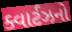
ક્વાર્ટઝનો